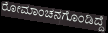
ರೋಮಾಂಚನಗೊಂಡಿದ್ದೆ